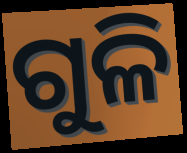
ଗୁଳି